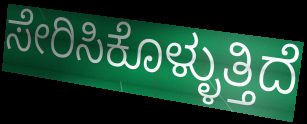
ಸೇರಿಸಿಕೊಳ್ಳುತ್ತಿದೆ